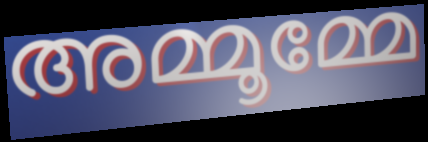
അമ്മൂമ്മേ